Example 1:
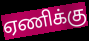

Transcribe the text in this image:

ஏணிக்கு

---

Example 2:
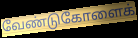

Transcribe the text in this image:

வேண்டுகோளைக்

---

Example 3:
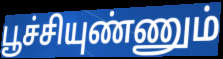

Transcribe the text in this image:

பூச்சியுண்ணும்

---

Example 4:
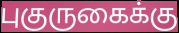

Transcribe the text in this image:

புகுருகைக்கு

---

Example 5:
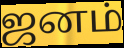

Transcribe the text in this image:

ஜனம்